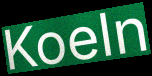
Koeln